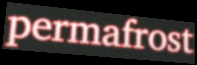
permafrost